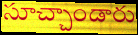
సూచ్చాండారు